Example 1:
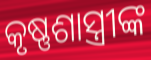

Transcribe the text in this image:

କୃଷ୍ଣଶାସ୍ତ୍ରୀଙ୍କ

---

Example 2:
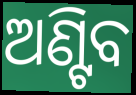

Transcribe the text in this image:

ଅଣ୍ଟିବ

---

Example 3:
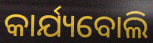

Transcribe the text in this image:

କାର୍ଯ୍ୟବୋଲି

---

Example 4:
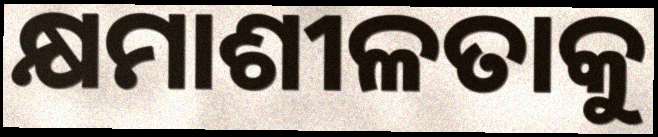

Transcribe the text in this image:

କ୍ଷମାଶୀଳତାକୁ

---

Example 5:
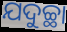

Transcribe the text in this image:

ଯଦୁଚ୍ଛା